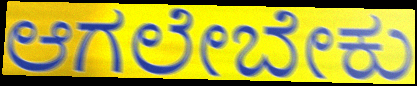
ಆಗಲೇಬೇಕು